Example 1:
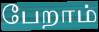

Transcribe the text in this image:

பேறாம்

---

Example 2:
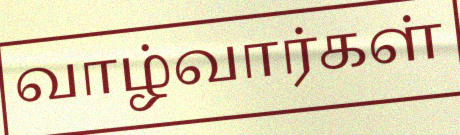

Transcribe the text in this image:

வாழ்வார்கள்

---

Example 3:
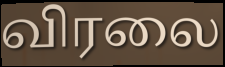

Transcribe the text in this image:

விரலை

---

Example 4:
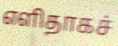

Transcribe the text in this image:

எளிதாகச்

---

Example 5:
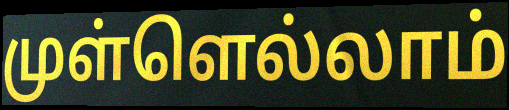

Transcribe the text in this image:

முள்ளெல்லாம்